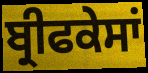
ਬ੍ਰੀਫਕੇਸਾਂ